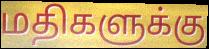
மதிகளுக்கு